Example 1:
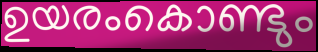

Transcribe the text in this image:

ഉയരംകൊണ്ടും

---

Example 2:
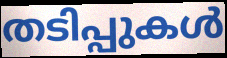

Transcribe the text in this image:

തടിപ്പുകൾ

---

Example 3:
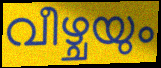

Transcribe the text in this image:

വീഴ്ചയും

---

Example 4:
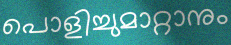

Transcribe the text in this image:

പൊളിച്ചുമാറ്റാനും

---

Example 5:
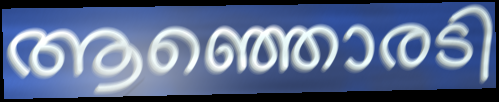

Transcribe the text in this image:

ആഞ്ഞൊരടി